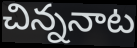
చిన్ననాట